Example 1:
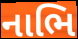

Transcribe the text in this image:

નાભિ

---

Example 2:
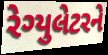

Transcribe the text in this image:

રેગ્યુલેટરને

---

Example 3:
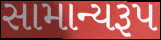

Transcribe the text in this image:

સામાન્યરૂપ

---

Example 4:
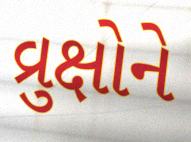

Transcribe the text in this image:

વ્રુક્ષોને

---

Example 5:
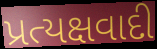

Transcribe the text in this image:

પ્રત્યક્ષવાદી